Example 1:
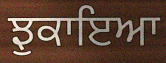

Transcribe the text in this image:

ਝੁਕਾਇਆ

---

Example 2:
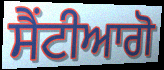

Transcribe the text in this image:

ਸੈਂਟੀਆਗੋ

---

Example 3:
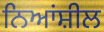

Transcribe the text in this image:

ਨਿਆਂਸ਼ੀਲ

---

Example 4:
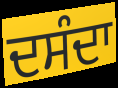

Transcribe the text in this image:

ਦਸੰਦਾ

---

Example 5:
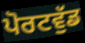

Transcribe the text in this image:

ਪੋਰਟਵੁੱਡ